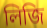
লিজি